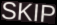
SKIP